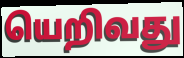
யெறிவது